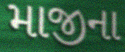
માજીના